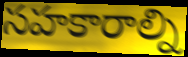
సహకారాల్ని